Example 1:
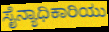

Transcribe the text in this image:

ಸೈನ್ಯಾಧಿಕಾರಿಯು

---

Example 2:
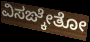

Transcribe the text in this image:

ವಿಸಙ್ಕೇತೋ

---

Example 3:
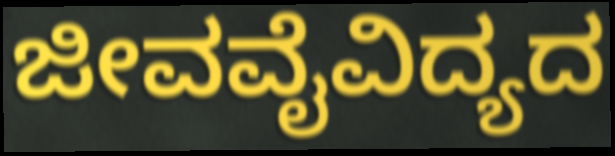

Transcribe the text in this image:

ಜೀವವೈವಿದ್ಯದ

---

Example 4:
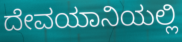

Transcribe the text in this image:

ದೇವಯಾನಿಯಲ್ಲಿ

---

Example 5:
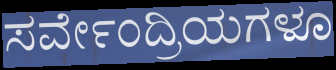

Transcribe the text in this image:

ಸರ್ವೇಂದ್ರಿಯಗಳೂ